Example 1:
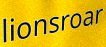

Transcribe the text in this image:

lionsroar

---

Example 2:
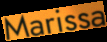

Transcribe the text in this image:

Marissa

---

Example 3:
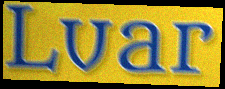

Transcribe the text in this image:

Luar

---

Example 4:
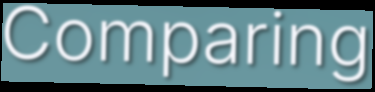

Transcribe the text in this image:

Comparing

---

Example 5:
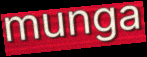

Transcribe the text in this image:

munga